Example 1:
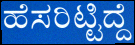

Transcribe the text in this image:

ಹೆಸರಿಟ್ಟಿದ್ದೆ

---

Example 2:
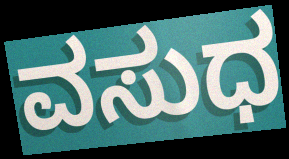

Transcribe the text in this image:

ವಸುಧ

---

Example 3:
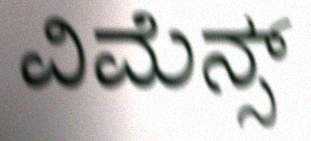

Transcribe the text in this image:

ವಿಮೆನ್ಸ್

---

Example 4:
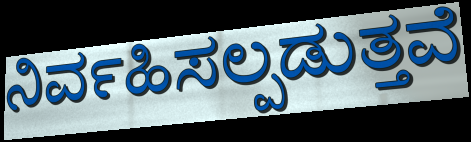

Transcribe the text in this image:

ನಿರ್ವಹಿಸಲ್ಪಡುತ್ತವೆ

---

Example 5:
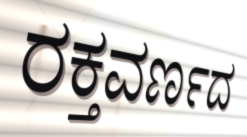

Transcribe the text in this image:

ರಕ್ತವರ್ಣದ